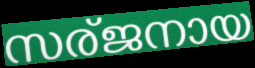
സര്ജനായ